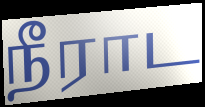
நீராட